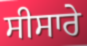
ਸੀਸਾਰੇ